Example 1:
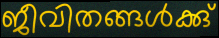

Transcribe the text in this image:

ജീവിതങ്ങൾക്കു്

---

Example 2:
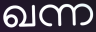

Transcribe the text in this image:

ഖന്ന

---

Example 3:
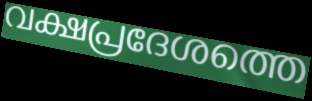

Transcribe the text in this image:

വക്ഷപ്രദേശത്തെ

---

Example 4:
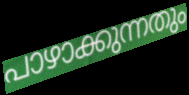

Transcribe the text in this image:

പാഴാക്കുന്നതും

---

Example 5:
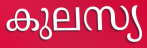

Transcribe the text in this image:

കുലസ്യ